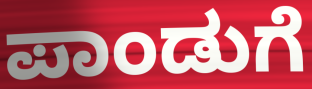
ಪಾಂಡುಗೆ